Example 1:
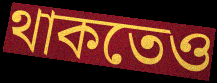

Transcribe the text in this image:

থাকতেও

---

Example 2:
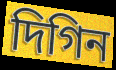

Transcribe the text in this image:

দিগিন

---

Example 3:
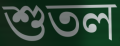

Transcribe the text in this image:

শুতল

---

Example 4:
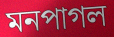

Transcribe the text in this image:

মনপাগল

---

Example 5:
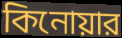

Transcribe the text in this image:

কিনোয়ার